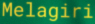
Melagiri